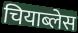
चियाब्लेस